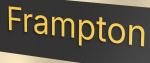
Frampton